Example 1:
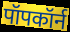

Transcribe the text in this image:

पॉपकॉर्न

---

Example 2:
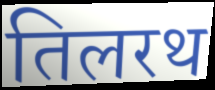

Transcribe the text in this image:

तिलरथ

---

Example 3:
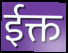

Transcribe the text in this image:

ईक्त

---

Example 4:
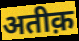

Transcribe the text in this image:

अतीक़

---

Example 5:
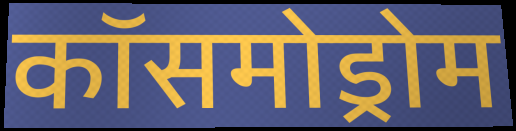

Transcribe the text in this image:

कॉसमोड्रोम